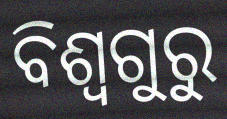
ବିଶ୍ୱଗୁରୁ